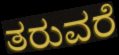
ತರುವರೆ